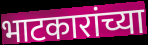
भाटकारांच्या